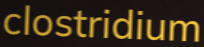
clostridium